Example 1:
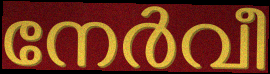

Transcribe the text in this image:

നേർവീ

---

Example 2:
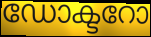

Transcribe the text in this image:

ഡോക്ടറോ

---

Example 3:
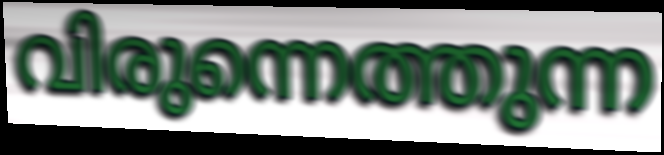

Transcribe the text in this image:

വിരുന്നെത്തുന്ന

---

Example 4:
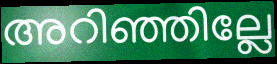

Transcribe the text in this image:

അറിഞ്ഞില്ലേ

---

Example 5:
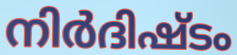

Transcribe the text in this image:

നിർദിഷ്ടം